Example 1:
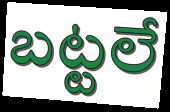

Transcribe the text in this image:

బట్టలే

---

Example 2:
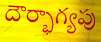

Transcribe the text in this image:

దౌర్భాగ్యపు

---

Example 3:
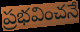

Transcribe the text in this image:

ప్రభవించనే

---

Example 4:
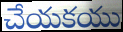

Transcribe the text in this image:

చేయకయు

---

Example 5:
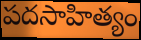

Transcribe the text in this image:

పదసాహిత్యం